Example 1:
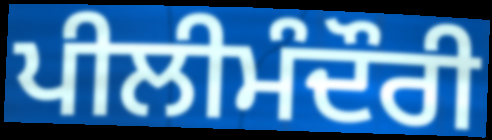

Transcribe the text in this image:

ਪੀਲੀਮੰਦੌਰੀ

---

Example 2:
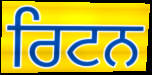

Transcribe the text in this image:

ਰਿਟਨ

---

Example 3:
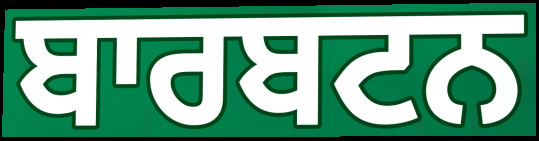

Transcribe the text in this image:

ਬਾਰਬਟਨ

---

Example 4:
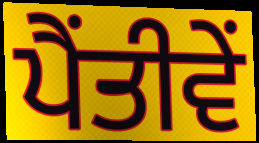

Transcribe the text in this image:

ਪੈਂਤੀਵੇਂ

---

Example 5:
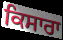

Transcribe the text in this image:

ਕਿਸਾਰਾ